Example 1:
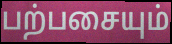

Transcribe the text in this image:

பற்பசையும்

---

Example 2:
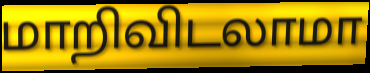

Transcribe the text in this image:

மாறிவிடலாமா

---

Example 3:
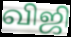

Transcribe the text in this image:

விஜி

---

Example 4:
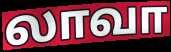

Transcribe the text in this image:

லாவா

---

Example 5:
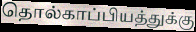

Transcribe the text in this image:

தொல்காப்பியத்துக்கு